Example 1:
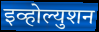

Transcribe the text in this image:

इव्होल्युशन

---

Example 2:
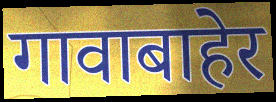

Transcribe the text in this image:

गावाबाहेर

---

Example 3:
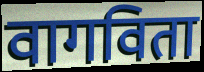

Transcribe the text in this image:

वागविता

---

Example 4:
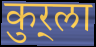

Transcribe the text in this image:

कुर्ला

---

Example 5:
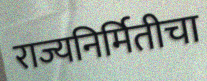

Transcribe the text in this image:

राज्यनिर्मितीचा